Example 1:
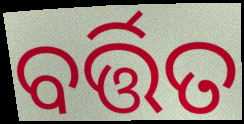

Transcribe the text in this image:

ବର୍ତ୍ତିତ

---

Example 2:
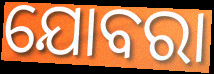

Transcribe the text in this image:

ଯୋବରା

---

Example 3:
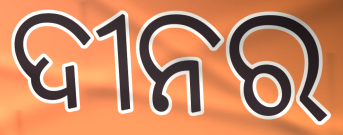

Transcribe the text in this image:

ଦୀନର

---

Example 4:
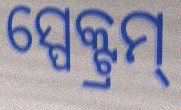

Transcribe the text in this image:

ସ୍ପେକ୍ଟ୍ରମ୍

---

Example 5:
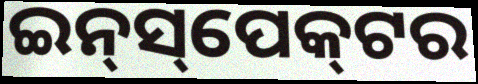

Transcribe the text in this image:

ଇନ୍‌ସ୍‌ପେକ୍‌ଟର